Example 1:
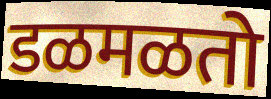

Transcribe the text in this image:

डळमळतो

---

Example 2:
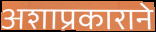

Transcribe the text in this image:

अशाप्रकाराने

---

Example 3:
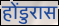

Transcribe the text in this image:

होंडुरास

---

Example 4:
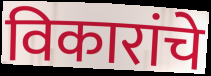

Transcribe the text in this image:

विकारांचे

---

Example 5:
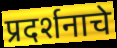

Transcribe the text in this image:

प्रदर्शनाचे